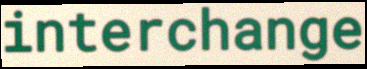
interchange